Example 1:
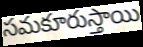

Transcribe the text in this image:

సమకూరుస్తాయి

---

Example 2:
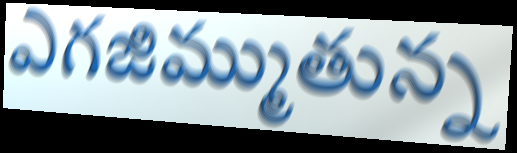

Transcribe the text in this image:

ఎగజిమ్ముతున్న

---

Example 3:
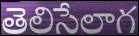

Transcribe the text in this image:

తెలిసేలాగ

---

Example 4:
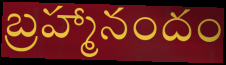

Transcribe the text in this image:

బ్రహ్మానందం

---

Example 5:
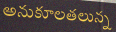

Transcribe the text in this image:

అనుకూలతలున్న